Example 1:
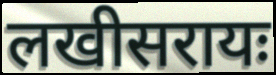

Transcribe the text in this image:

लखीसरायः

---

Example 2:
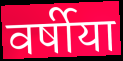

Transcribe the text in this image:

वर्षीया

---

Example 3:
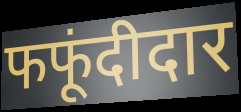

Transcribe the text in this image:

फफूंदीदार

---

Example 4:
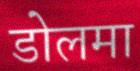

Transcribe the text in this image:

डोलमा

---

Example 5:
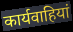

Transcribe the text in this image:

कार्यवाहियां